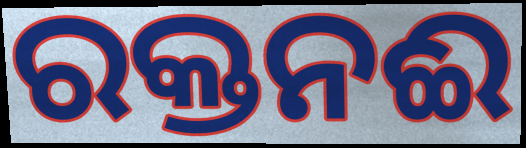
ରକ୍ତନଈ